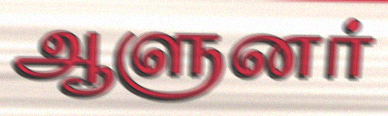
ஆளுனர்